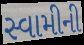
સ્વામીની